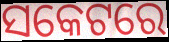
ସକେଟରେ